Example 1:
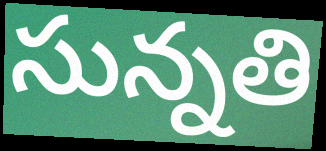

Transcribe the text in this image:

సున్నతి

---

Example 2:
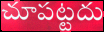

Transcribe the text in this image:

చూపట్టదు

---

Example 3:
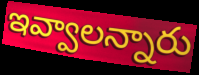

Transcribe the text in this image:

ఇవ్వాలన్నారు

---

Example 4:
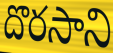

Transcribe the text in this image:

దొరసాని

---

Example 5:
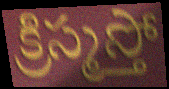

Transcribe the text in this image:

క్రిస్మస్తో